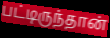
பட்டிருந்தான்